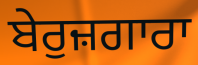
ਬੇਰੁਜ਼ਗਾਰਾ